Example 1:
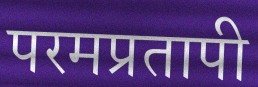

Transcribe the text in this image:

परमप्रतापी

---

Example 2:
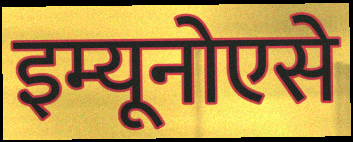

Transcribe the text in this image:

इम्यूनोएसे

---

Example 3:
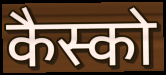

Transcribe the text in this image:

कैस्को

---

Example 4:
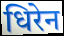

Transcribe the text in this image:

धिरेन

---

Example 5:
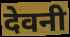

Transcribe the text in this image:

देवनी